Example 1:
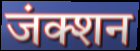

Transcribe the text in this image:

जंक्शन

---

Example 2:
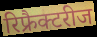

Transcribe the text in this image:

रिफ्रैक्टरीज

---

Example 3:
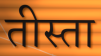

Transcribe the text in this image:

तीस्ता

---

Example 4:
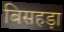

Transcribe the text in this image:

बिसहड़ा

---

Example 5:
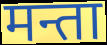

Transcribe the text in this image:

मन्ता